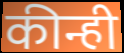
कीन्ही